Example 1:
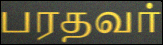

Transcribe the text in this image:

பரதவர்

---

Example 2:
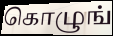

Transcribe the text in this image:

கொழுங்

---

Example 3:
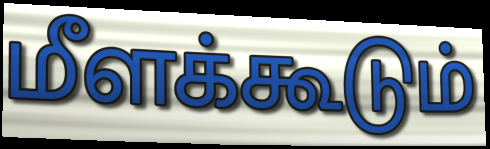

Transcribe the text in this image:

மீளக்கூடும்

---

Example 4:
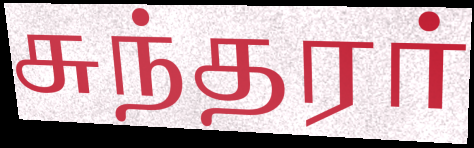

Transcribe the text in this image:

சுந்தரர்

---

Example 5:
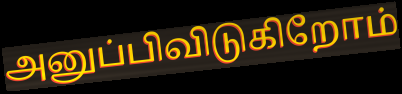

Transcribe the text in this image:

அனுப்பிவிடுகிறோம்